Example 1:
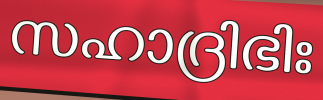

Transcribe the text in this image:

സഹാദ്രിഭിഃ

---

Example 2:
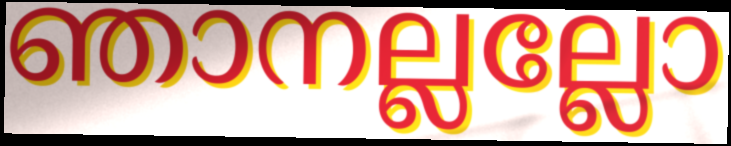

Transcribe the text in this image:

ഞാനല്ലല്ലോ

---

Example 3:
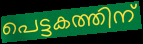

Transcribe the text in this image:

പെട്ടകത്തിന്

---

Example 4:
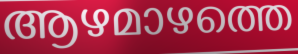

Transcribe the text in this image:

ആഴമാഴത്തെ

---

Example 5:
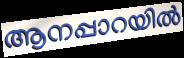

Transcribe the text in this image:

ആനപ്പാറയിൽ